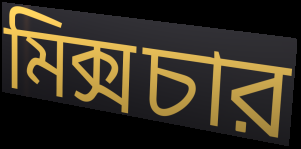
মিক্সচার